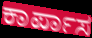
ಕಾರ್ಪಾಸ